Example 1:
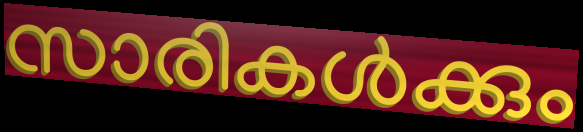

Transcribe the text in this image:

സാരികൾക്കും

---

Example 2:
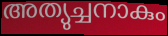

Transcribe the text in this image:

അത്യുച്ചനാകും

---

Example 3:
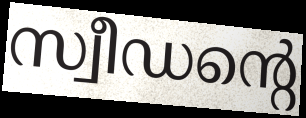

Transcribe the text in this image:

സ്വീഡന്റെ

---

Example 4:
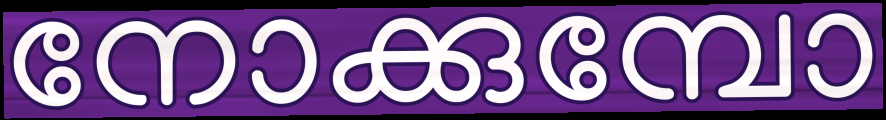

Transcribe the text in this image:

നോക്കുമ്പോ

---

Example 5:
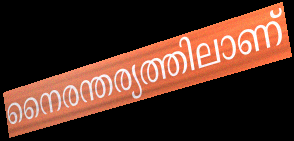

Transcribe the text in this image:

നൈരന്തര്യത്തിലാണ്